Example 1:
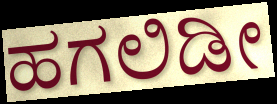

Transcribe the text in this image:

ಹಗಲಿಡೀ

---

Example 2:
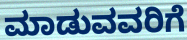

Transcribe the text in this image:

ಮಾಡುವವರಿಗೆ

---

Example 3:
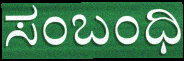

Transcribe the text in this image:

ಸಂಬಂಧಿ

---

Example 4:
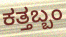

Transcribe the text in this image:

ಕತ್ತಬ್ಬಂ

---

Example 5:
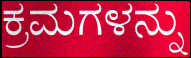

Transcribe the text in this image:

ಕ್ರಮಗಳನ್ನು